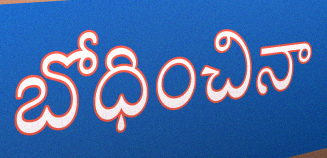
బోధించినా